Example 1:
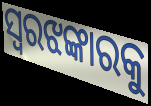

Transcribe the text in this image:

ସ୍ୱରଝଙ୍କାରକୁ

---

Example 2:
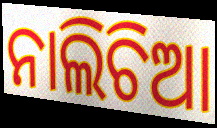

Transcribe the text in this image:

ନାଲିଚିଆ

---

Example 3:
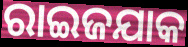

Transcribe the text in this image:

ରାଇଜଯାକ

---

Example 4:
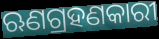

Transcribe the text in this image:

ଋଣଗ୍ରହଣକାରୀ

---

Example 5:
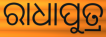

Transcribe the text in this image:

ରାଧାପୁତ୍ର